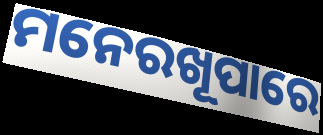
ମନେରଖୂପାରେ